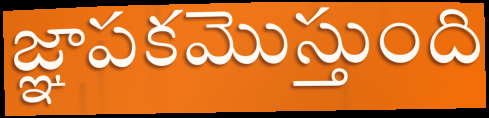
జ్ఞాపకమొస్తుంది